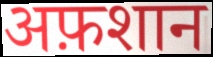
अफ़शान